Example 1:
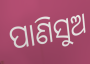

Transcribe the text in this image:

ପାଣିସୁଅ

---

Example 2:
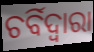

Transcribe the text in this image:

ଚର୍ବିଦ୍ଵାରା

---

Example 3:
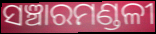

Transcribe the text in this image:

ସଞ୍ଚାରମଣ୍ଡଳୀ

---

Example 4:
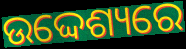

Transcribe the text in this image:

ଉଦ୍ଦେଶ୍ୟରେ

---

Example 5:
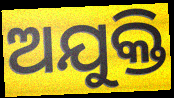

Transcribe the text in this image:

ଅଯୁକ୍ତି